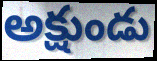
అక్షుండు